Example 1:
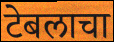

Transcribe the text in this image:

टेबलाचा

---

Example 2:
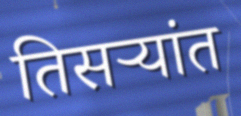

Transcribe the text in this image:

तिसर्‍यांत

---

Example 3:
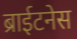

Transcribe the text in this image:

ब्राईटनेस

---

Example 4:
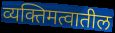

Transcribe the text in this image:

व्यक्तिमत्वातील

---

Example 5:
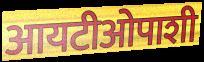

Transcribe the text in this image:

आयटीओपाशी